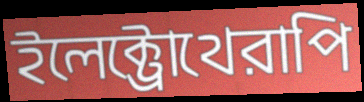
ইলেক্ট্রোথেরাপি